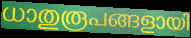
ധാതുരൂപങ്ങളായി